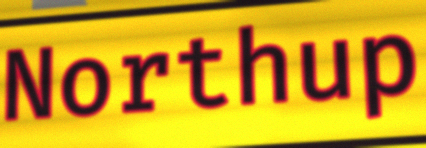
Northup